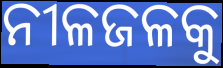
ନୀଳଜଳକୁ